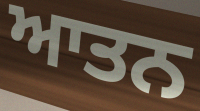
ਆਤਨ